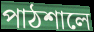
পাঠশালে